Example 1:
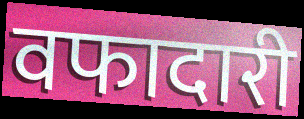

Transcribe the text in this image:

वफादारी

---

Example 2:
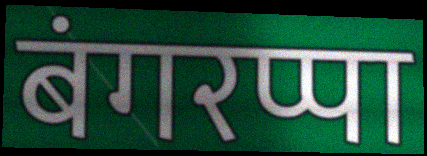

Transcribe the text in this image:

बंगरप्पा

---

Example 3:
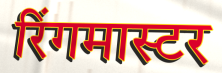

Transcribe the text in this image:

रिंगमास्टर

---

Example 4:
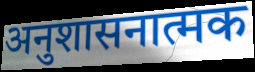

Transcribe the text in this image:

अनुशासनात्मक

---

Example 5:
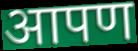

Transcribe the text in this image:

आपण